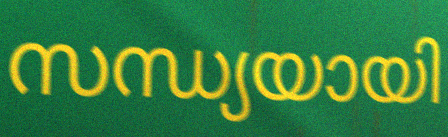
സന്ധ്യയായി